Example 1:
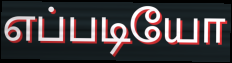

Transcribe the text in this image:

எப்படியோ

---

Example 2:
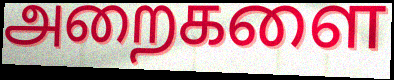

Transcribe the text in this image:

அறைகளை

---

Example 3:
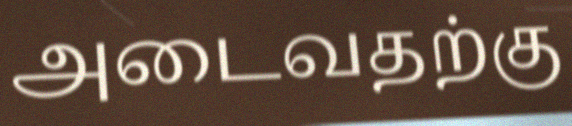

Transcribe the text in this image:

அடைவதற்கு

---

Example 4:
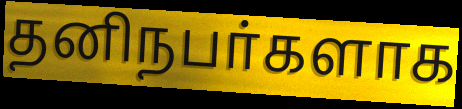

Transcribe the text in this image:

தனிநபர்களாக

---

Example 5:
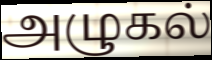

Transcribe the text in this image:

அழுகல்